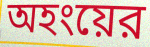
অহংয়ের